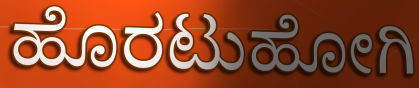
ಹೊರಟುಹೋಗಿ